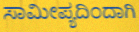
ಸಾಮೀಪ್ಯದಿಂದಾಗಿ